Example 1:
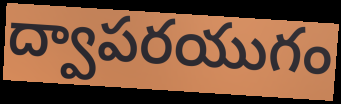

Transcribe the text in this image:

ద్వాపరయుగం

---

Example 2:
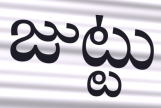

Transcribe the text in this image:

జుట్టు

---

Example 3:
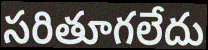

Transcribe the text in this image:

సరితూగలేదు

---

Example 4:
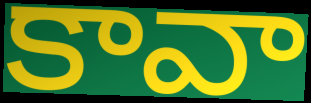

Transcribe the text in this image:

కావా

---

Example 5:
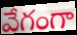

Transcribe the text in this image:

వేగంగా